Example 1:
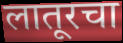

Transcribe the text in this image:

लातूरचा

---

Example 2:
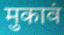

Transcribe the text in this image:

मुकावं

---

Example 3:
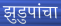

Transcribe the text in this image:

झुडुपांचा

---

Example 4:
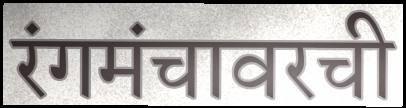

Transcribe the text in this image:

रंगमंचावरची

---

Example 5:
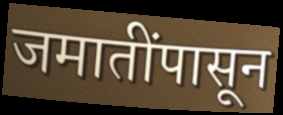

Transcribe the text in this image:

जमातींपासून